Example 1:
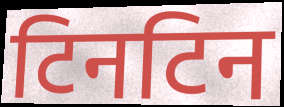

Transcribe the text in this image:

टिनटिन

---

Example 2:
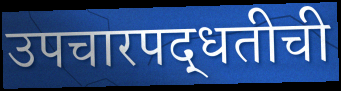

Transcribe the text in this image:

उपचारपद्धतीची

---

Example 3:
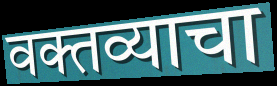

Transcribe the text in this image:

वक्तव्याचा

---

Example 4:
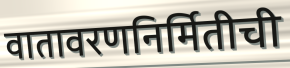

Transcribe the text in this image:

वातावरणनिर्मितीची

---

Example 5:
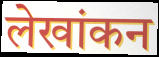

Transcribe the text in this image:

लेखांकन